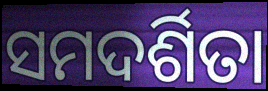
ସମଦର୍ଶିତା